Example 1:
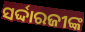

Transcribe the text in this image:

ସର୍ଦ୍ଦାରଜୀଙ୍କ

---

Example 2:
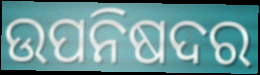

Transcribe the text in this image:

ଉପନିଷଦର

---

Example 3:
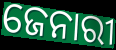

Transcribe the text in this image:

ଜେନାରୀ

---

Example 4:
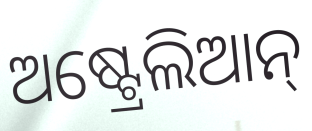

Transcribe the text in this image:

ଅଷ୍ଟ୍ରେଲିଆନ୍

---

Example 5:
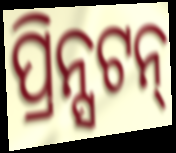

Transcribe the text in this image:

ପ୍ରିନ୍ସଟନ୍